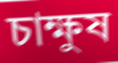
চাক্ষুষ